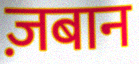
ज़बान